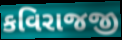
કવિરાજજી